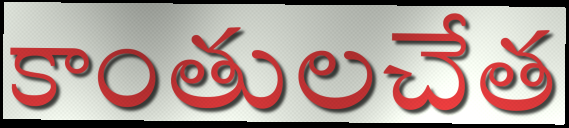
కాంతులచేత